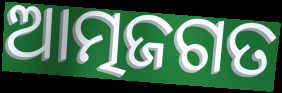
ଆତ୍ମଜଗତ